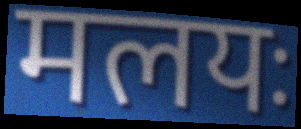
मलयः